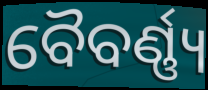
ବୈବର୍ଣ୍ଣ୍ୟ